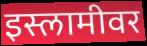
इस्लामीवर